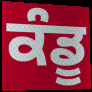
ਕੰਡੂ